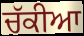
ਚੱਕੀਆ